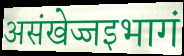
असंखेज्जइभागं